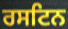
ਰਸਟਿਨ